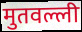
मुतवल्ली